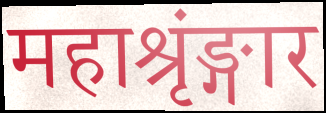
महाश्रृंङ्गार